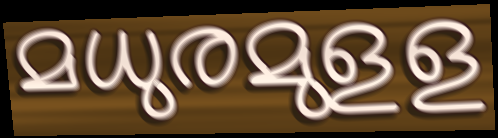
മധുരമുളള